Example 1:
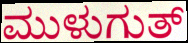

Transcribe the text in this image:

ಮುಳುಗುತ್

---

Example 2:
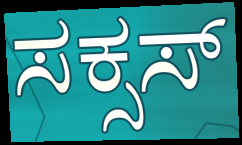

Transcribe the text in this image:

ಸಕ್ಸಸ್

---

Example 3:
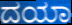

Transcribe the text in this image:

ದಯಾ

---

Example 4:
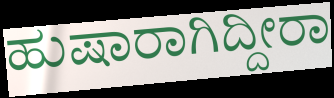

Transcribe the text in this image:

ಹುಷಾರಾಗಿದ್ದೀರಾ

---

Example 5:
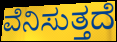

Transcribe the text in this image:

ವೆನಿಸುತ್ತದೆ